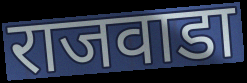
राजवाडा